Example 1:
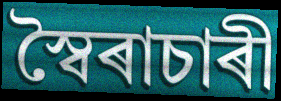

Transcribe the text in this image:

স্বৈৰাচাৰী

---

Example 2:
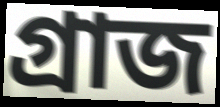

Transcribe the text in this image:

গ্ৰাজ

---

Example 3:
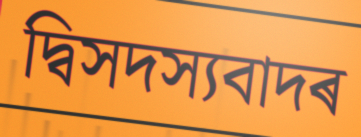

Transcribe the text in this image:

দ্বিসদস্যবাদৰ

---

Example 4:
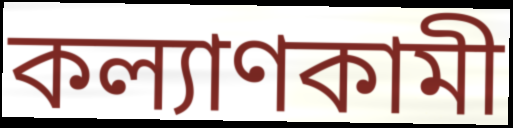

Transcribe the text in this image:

কল্যাণকামী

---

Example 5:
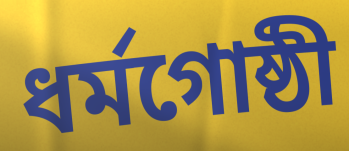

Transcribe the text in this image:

ধৰ্মগোষ্ঠী